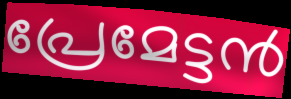
പ്രേമേട്ടൻ